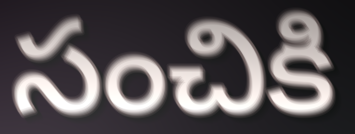
సంచికి